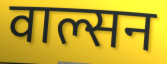
वाल्सन